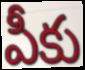
పీకు